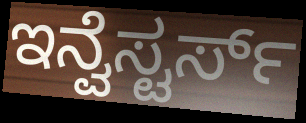
ಇನ್ವೆಸ್ಟರ್ಸ್